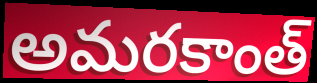
అమరకాంత్